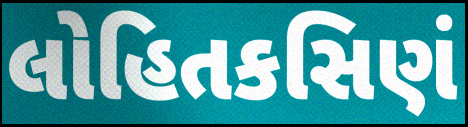
લોહિતકસિણં